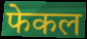
फेकल